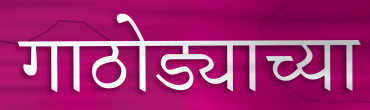
गाठोड्याच्या